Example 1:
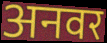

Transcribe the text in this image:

अनवर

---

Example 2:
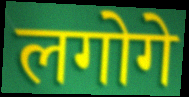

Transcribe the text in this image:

लगोगे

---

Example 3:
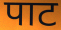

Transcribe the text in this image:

पाट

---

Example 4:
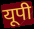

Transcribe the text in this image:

यूपी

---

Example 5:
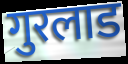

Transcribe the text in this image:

गुरलाड